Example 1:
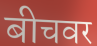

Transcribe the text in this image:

बीचवर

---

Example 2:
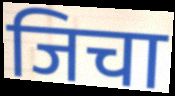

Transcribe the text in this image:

जिचा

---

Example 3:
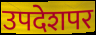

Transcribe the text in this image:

उपदेशपर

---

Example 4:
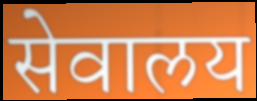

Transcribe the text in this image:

सेवालय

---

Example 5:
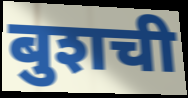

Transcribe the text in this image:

बुशची